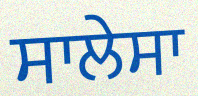
ਸਾਲੇਸਾ